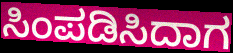
ಸಿಂಪಡಿಸಿದಾಗ